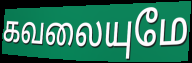
கவலையுமே